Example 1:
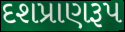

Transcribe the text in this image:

દશપ્રાણરૂપ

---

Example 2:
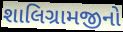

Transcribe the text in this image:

શાલિગ્રામજીનો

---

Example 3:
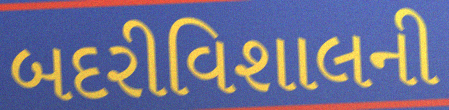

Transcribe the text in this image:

બદરીવિશાલની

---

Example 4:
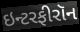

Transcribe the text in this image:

ઇન્ટરફીરૉન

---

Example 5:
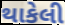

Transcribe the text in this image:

થાકેલી